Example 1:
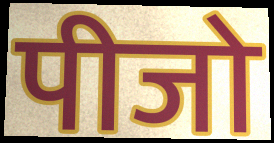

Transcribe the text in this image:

पीजो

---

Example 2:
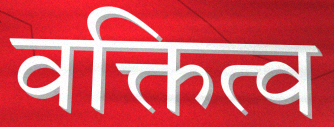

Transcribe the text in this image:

वक्तित्व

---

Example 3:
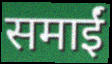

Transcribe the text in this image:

समाईं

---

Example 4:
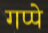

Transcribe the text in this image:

गप्पे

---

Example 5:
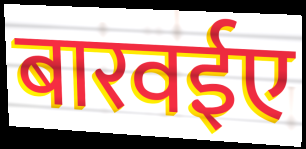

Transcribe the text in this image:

बारवईए